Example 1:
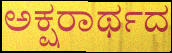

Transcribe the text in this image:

ಅಕ್ಷರಾರ್ಥದ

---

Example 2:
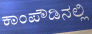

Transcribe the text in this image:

ಕಾಂಪೌಡಿನಲ್ಲಿ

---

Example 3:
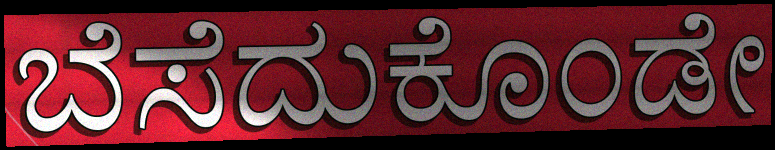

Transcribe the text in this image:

ಬೆಸೆದುಕೊಂಡೇ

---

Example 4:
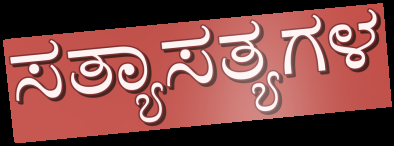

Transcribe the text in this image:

ಸತ್ಯಾಸತ್ಯಗಳ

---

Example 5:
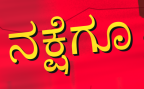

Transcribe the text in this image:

ನಕ್ಷೆಗೂ